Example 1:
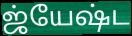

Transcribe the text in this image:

ஜ்யேஷ்ட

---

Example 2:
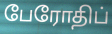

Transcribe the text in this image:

பேரோதிப்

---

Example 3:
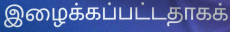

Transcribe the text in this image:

இழைக்கப்பட்டதாகக்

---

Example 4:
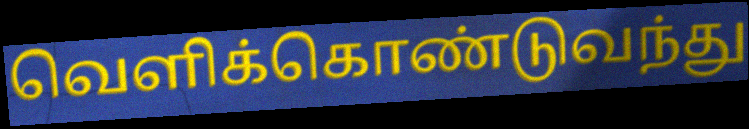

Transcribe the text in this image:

வெளிக்கொண்டுவந்து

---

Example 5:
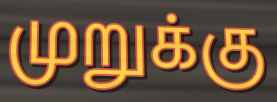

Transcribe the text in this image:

முறுக்கு